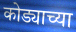
कोड्याच्या